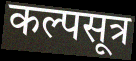
कल्पसूत्र